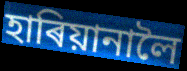
হাৰিয়ানালৈ